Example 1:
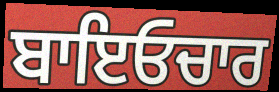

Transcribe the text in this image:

ਬਾਇਓਚਾਰ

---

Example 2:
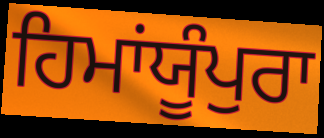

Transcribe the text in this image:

ਹਿਮਾਂਯੂੰਪੁਰਾ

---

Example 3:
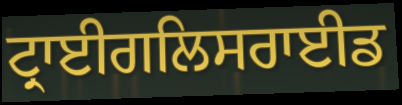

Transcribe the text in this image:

ਟ੍ਰਾਈਗਲਿਸਰਾਈਡ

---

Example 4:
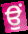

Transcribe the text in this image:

ਉਂ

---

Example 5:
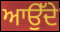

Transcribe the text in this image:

ਆਉੱਦੇ